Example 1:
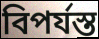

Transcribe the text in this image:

বিপর্যস্ত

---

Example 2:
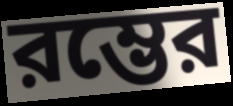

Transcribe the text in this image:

রম্ভের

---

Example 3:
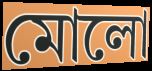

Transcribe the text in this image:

মোলো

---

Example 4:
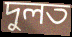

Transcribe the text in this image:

দুলত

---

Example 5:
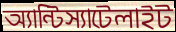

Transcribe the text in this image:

অ্যান্টিস্যাটেলাইট